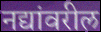
नद्यांवरील